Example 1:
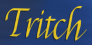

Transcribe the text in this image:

Tritch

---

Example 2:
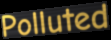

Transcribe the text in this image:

Polluted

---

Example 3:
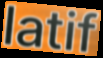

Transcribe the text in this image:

latif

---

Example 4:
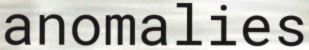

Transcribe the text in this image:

anomalies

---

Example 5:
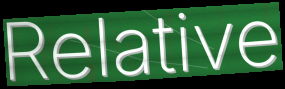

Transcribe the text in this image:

Relative